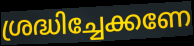
ശ്രദ്ധിച്ചേക്കണേ